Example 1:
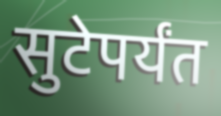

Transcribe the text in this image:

सुटेपर्यंत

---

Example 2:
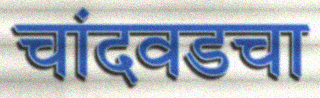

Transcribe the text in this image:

चांदवडचा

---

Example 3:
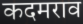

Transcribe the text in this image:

कदमराव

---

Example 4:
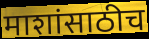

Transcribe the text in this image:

माशांसाठीच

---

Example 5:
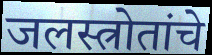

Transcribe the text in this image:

जलस्त्रोतांचे